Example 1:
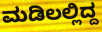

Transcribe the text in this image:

ಮಡಿಲಲ್ಲಿದ್ದ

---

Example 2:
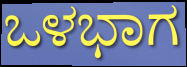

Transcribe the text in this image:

ಒಳಭಾಗ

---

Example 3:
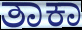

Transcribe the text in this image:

ತಾಕಾ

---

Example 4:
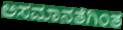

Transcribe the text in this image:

ಅಸಮಾನತೆಗಿಂತ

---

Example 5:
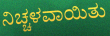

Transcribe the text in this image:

ನಿಚ್ಚಳವಾಯಿತು